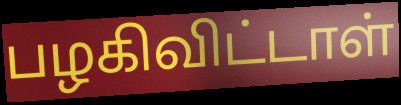
பழகிவிட்டாள்